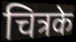
चित्रके